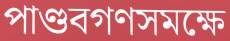
পাণ্ডবগণসমক্ষে